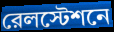
রেলস্টেশনে